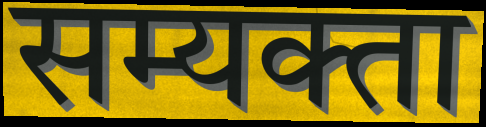
सम्यक्ता